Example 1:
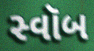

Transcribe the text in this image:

સ્વૉબ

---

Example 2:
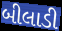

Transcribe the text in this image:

બીલાડી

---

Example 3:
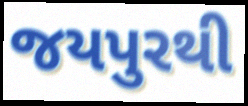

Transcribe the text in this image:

જયપુરથી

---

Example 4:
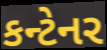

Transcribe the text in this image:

કન્ટેનર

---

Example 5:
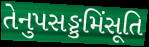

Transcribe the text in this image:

તેનુપસઙ્કમિંસૂતિ